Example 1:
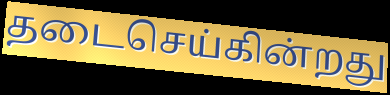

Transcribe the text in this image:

தடைசெய்கின்றது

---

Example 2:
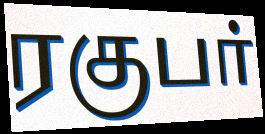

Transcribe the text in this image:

ரகுபர்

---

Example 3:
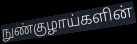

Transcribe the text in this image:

நுண்குழாய்களின்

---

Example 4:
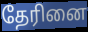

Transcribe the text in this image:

தேரினை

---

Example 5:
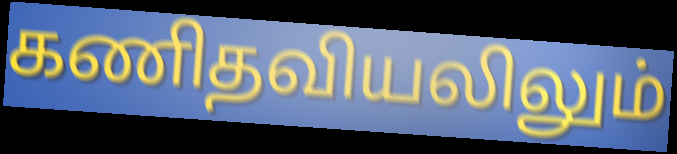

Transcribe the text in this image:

கணிதவியலிலும்